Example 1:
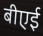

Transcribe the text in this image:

बीएई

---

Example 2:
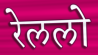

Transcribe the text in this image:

रेललो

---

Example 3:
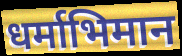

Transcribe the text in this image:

धर्माभिमान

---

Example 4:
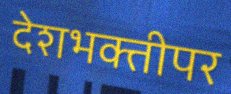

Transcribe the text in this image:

देशभक्तीपर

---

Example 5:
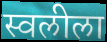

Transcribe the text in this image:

स्वलीला